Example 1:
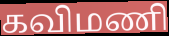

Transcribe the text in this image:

கவிமணி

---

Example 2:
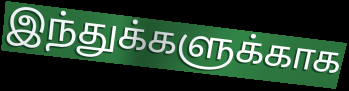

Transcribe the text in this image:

இந்துக்களுக்காக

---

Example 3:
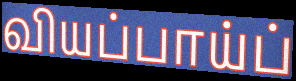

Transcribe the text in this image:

வியப்பாய்ப்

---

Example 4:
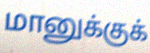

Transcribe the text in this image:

மானுக்குக்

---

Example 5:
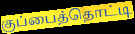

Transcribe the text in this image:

குப்பைத்தொட்டி